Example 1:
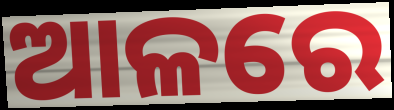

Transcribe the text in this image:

ଆଳରେ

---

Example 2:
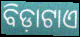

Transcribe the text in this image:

ବିଡ଼ାଟାଏ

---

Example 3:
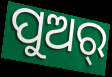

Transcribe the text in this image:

ପୁଅର୍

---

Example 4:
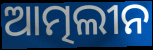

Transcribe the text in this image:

ଆତ୍ମଲୀନ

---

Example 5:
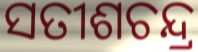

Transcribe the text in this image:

ସତୀଶଚନ୍ଦ୍ର